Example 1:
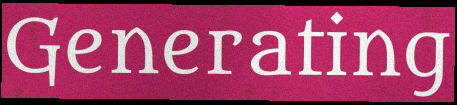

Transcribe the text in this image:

Generating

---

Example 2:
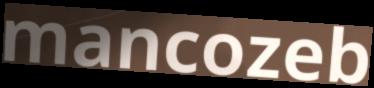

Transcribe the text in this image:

mancozeb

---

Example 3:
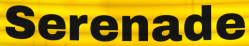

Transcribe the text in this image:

Serenade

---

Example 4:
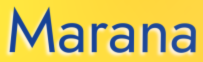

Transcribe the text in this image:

Marana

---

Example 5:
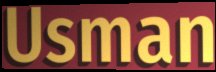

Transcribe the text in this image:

Usman